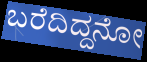
ಬರೆದಿದ್ದನೋ